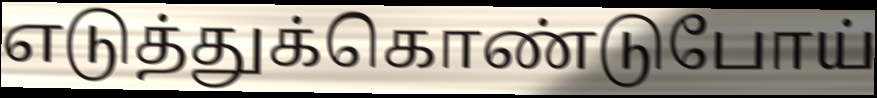
எடுத்துக்கொண்டுபோய்